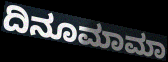
ದಿನೂಮಾಮಾ